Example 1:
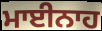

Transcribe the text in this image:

ਮਾਈਨਾਹ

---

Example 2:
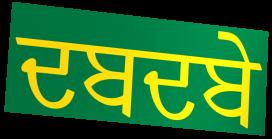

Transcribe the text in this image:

ਦਬਦਬੇ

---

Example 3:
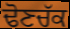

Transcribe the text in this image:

ਢੋਣਚੱਕ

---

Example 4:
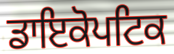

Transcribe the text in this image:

ਡਾਇਕੋਪਟਿਕ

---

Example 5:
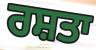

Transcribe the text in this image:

ਰਸ਼ਤਾ